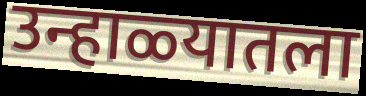
उन्हाळ्यातला